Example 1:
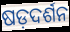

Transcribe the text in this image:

ଷଡ଼ଦର୍ଶନ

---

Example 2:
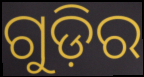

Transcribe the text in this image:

ଗୁଡ଼ିର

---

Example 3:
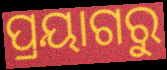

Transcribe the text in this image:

ପ୍ରୟାଗରୁ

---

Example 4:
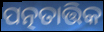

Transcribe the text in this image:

ପତ୍ନତାତ୍ତିକ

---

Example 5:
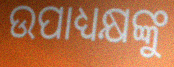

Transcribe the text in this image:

ଉପାଧ୍ୟକ୍ଷଙ୍କୁ